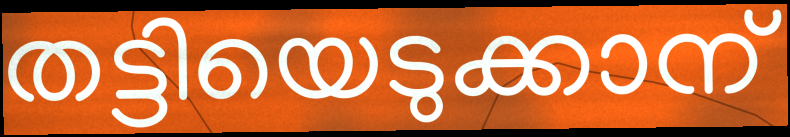
തട്ടിയെടുക്കാന്